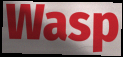
Wasp